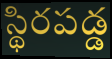
స్థిరపడ్డ